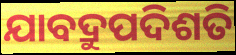
ଯାବଦ୍ରୁପଦିଶତି